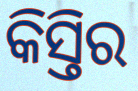
କିସ୍ତିର